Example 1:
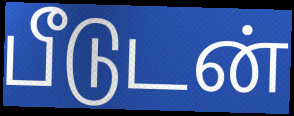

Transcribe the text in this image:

பீடுடன்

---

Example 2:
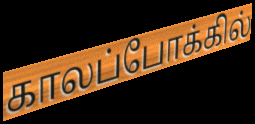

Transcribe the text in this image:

காலப்போக்கில்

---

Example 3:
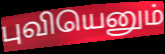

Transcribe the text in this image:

புவியெனும்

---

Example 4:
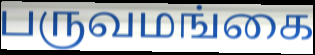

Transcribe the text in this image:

பருவமங்கை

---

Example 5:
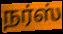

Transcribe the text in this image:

நர்ஸ்